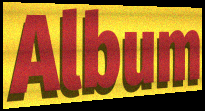
Album